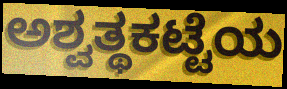
ಅಶ್ವತ್ಥಕಟ್ಟೆಯ